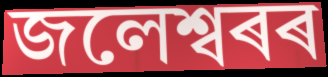
জলেশ্বৰৰ